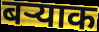
बऱ्याक